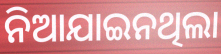
ନିଆଯାଇନଥିଲା